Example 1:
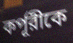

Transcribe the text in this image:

কর্পূরীকে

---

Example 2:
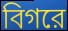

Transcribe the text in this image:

বিগরে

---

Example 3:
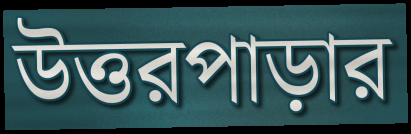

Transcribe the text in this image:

উত্তরপাড়ার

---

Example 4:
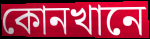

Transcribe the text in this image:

কোনখানে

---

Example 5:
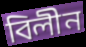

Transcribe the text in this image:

বিলীন